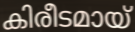
കിരീടമായ്